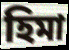
হিমা